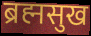
ब्रह्मसुख